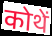
कोथें